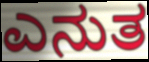
ಎನುತ